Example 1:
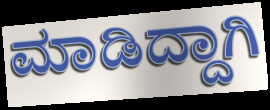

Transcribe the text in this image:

ಮಾಡಿದ್ದಾಗಿ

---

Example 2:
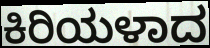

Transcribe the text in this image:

ಕಿರಿಯಳಾದ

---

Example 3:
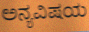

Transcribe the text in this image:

ಅನ್ಯವಿಷಯ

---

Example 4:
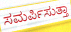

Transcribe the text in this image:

ಸಮರ್ಪಿಸುತ್ತಾ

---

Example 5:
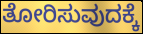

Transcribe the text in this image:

ತೋರಿಸುವುದಕ್ಕೆ